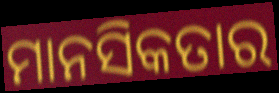
ମାନସିକତାର